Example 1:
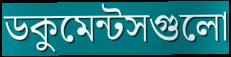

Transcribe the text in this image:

ডকুমেন্টসগুলো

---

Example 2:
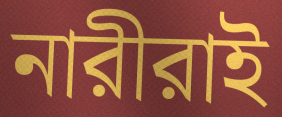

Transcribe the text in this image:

নারীরাই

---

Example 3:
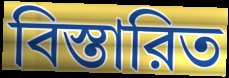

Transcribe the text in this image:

বিস্তারিত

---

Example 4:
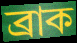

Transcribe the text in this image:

ব্রাক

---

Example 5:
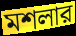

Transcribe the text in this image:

মশলার